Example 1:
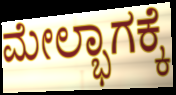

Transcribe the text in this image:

ಮೇಲ್ಭಾಗಕ್ಕೆ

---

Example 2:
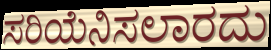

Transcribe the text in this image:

ಸರಿಯೆನಿಸಲಾರದು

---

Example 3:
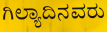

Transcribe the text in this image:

ಗಿಲ್ಯಾದಿನವರು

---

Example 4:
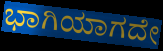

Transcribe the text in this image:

ಭಾಗಿಯಾಗದೇ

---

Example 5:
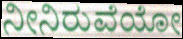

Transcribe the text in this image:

ನೀನಿರುವೆಯೋ